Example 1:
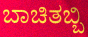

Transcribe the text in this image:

ಬಾಚಿತಬ್ಬಿ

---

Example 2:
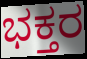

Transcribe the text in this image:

ಭಕ್ತರ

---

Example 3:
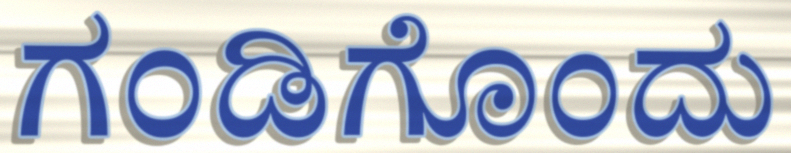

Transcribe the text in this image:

ಗಂಡಿಗೊಂದು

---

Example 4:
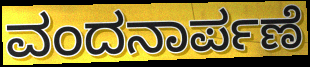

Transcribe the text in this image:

ವಂದನಾರ್ಪಣೆ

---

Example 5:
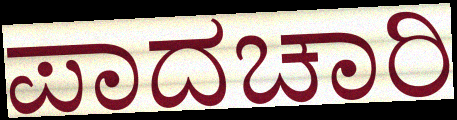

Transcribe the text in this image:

ಪಾದಚಾರಿ